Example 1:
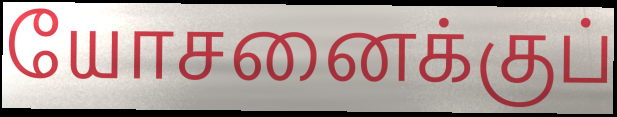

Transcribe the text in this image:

யோசனைக்குப்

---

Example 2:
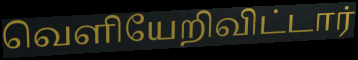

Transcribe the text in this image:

வெளியேறிவிட்டார்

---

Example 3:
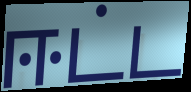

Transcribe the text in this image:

ஈட்ட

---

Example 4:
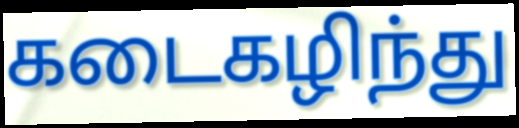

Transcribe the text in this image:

கடைகழிந்து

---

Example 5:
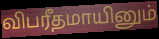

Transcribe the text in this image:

விபரீதமாயினும்